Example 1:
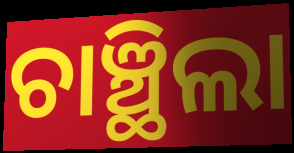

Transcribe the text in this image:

ଚାଞ୍ଛିଲା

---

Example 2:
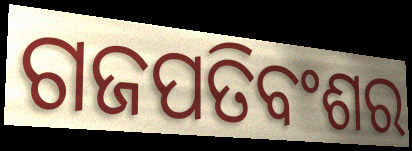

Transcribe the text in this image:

ଗଜପତିବଂଶର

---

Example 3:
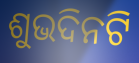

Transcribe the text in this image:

ଶୁଭଦିନଟି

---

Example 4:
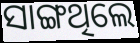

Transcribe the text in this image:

ସାଙ୍ଗଥିଲେ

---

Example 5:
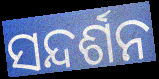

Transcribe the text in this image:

ସନ୍ଦର୍ଶନ